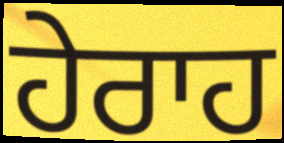
ਹੇਰਾਹ